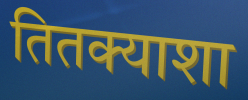
तितक्याशा